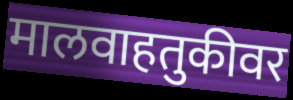
मालवाहतुकीवर